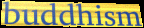
buddhism